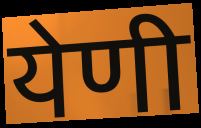
येणी